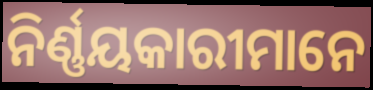
ନିର୍ଣ୍ଣୟକାରୀମାନେ